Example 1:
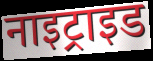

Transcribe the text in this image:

नाइट्राइड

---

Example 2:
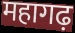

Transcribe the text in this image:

महागढ़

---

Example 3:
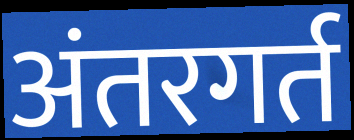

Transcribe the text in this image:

अंतरगर्त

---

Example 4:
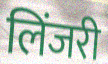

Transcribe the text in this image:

लिंजरी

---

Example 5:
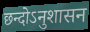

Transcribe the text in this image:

छन्दोऽनुशासन